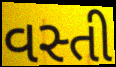
વસ્તી